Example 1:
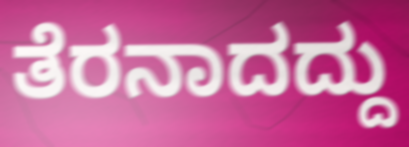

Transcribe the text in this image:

ತೆರನಾದದ್ದು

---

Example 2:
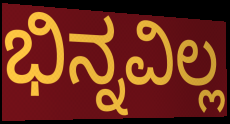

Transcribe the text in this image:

ಭಿನ್ನವಿಲ್ಲ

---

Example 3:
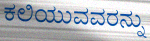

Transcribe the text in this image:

ಕಲಿಯುವವರನ್ನು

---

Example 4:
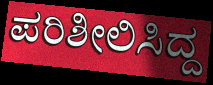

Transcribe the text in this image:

ಪರಿಶೀಲಿಸಿದ್ದ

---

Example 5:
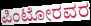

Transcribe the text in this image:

ಪಿಂಟೋರವರ